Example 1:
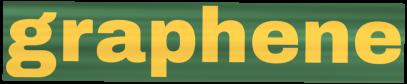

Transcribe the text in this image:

graphene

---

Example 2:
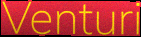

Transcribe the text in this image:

Venturi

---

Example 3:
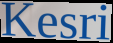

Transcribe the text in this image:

Kesri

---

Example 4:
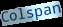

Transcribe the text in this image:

Colspan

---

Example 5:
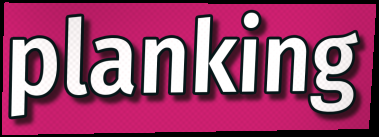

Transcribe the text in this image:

planking